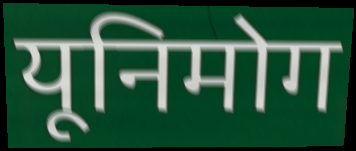
यूनिमोग